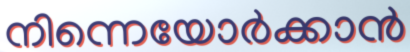
നിന്നെയോർക്കാൻ